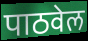
पाठवेल